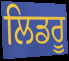
ਲਿਡਰੂ